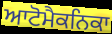
ਆਟੋਮੈਕਨਿਕਾ